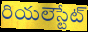
రియలెస్టేట్